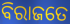
ବିରାଜତେ